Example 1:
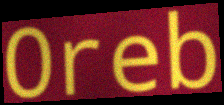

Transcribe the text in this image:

Oreb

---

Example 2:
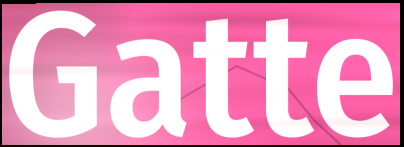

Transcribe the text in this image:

Gatte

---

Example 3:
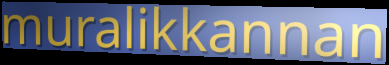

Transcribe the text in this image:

muralikkannan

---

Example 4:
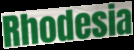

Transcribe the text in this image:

Rhodesia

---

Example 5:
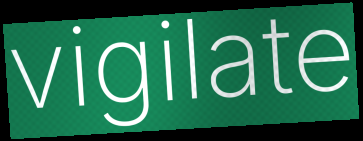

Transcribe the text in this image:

vigilate